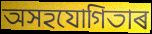
অসহযোগিতাৰ